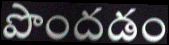
పొందడం